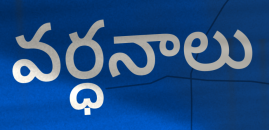
వర్ధనాలు